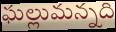
ఘల్లుమన్నది